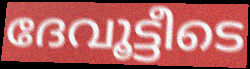
ദേവൂട്ടീടെ